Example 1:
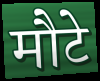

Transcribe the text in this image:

मौटे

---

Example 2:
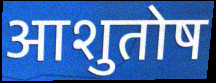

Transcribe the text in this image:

आशुतोष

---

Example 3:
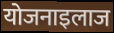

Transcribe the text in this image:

योजनाइलाज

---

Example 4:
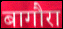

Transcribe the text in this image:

बागौरा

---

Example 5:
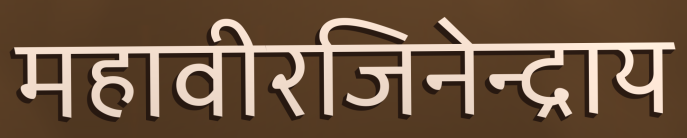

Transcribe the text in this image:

महावीरजिनेन्द्राय